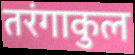
तरंगाकुल